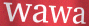
wawa